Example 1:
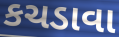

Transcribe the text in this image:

કચડાવા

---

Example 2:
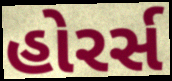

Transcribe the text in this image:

હોરર્સ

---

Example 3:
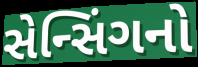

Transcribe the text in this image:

સેન્સિંગનો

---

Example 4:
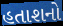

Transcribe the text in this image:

હતાશનો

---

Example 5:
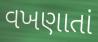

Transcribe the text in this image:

વખણાતાં